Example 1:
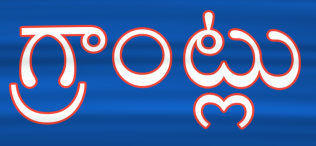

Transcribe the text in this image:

గ్రాంట్లు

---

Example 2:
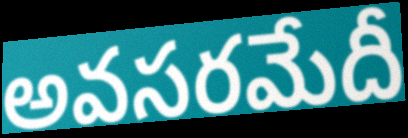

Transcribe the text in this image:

అవసరమేదీ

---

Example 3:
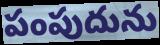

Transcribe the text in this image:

పంపుదును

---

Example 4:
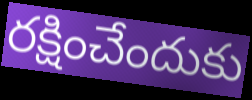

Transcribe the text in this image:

రక్షించేందుకు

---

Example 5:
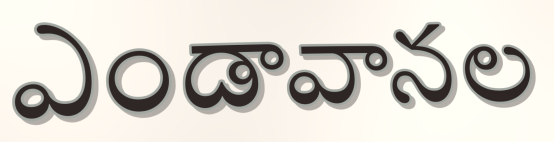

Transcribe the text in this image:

ఎండావానల